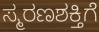
ಸ್ಮರಣಶಕ್ತಿಗೆ